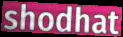
shodhat